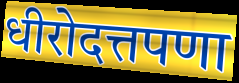
धीरोदत्तपणा